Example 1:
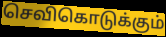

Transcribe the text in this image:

செவிகொடுக்கும்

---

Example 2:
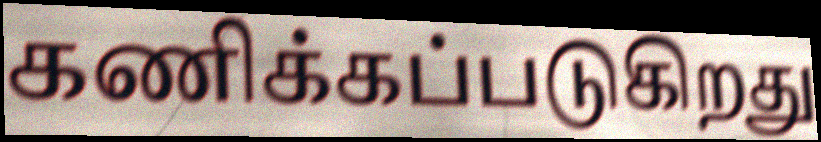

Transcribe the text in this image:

கணிக்கப்படுகிறது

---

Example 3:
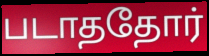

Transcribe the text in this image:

படாததோர்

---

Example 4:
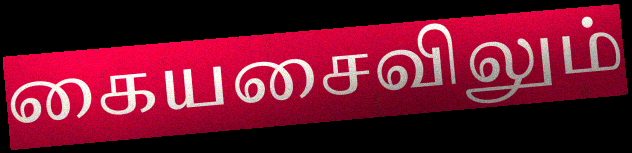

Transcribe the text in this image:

கையசைவிலும்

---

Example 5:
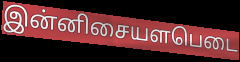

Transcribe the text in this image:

இன்னிசையளபெடை